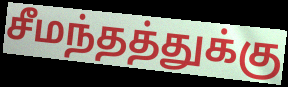
சீமந்தத்துக்கு